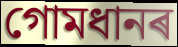
গোমধানৰ